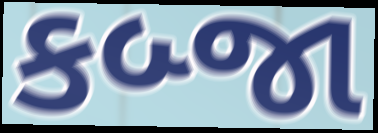
કબ્જા